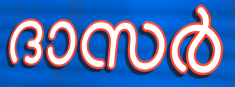
ദാസർ